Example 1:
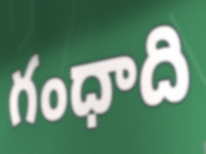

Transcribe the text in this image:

గంధాది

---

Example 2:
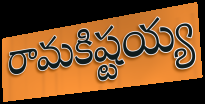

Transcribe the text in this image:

రామకిష్టయ్య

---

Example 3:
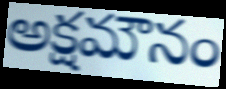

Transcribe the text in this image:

అక్షమౌనం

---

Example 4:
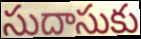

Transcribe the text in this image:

సుదాసుకు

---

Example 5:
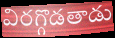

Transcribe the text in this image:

విరగ్గొడతాడు